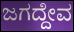
ಜಗದ್ದೇವ